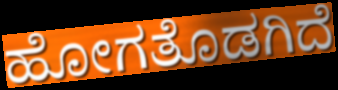
ಹೋಗತೊಡಗಿದೆ